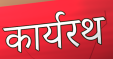
कार्यरथ